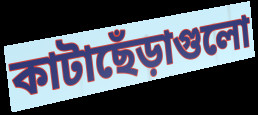
কাটাছেঁড়াগুলো